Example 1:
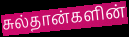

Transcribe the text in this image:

சுல்தான்களின்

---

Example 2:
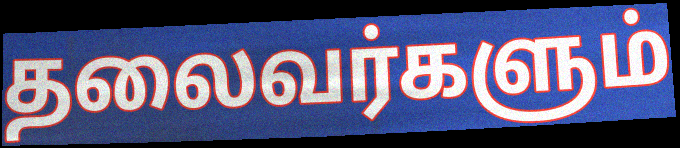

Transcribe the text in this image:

தலைவர்களும்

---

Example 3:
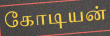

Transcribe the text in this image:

கோடியன்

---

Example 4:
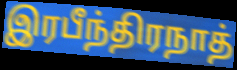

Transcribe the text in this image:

இரபீந்திரநாத்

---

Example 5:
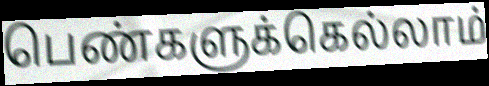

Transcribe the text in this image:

பெண்களுக்கெல்லாம்